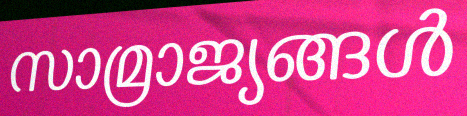
സാമ്രാജ്യങ്ങൾ